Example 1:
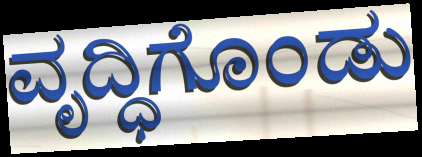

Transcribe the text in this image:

ವೃದ್ಧಿಗೊಂಡು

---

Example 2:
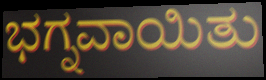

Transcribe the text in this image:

ಭಗ್ನವಾಯಿತು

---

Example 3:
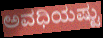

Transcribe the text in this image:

ಅವಧಿಯಷ್ಟು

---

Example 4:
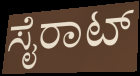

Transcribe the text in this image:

ಸೈರಾಟ್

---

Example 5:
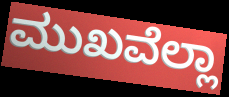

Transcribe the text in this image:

ಮುಖವೆಲ್ಲಾ